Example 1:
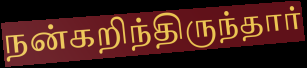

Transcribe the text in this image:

நன்கறிந்திருந்தார்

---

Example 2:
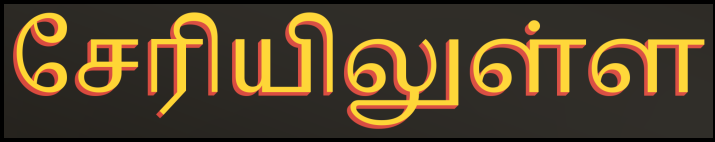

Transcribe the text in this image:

சேரியிலுள்ள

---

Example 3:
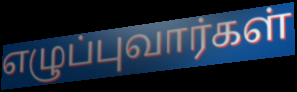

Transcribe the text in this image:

எழுப்புவார்கள்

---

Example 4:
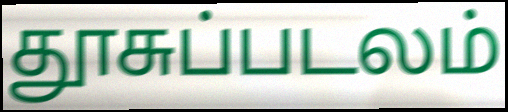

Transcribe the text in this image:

தூசுப்படலம்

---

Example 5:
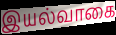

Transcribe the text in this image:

இயல்வாகை